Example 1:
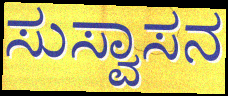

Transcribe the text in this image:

ಸುಸ್ವಾಸನ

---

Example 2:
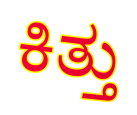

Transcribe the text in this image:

ಕಿತ್ತು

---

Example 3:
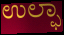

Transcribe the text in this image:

ಉಲ್ಫಾ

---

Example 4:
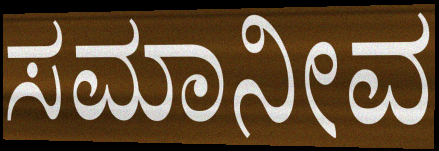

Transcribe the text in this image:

ಸಮಾನೀವ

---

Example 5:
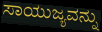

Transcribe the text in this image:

ಸಾಯುಜ್ಯವನ್ನು